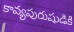
కావ్యపురుషుడికి